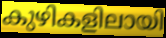
കുഴികളിലായി